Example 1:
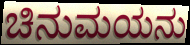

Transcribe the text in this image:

ಚಿನುಮಯನು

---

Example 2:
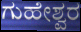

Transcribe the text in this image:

ಗುಹೇಶ್ವರ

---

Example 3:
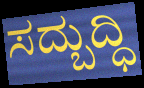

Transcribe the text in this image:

ಸದ್ಬುದ್ಧಿ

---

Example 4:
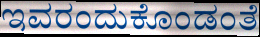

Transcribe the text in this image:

ಇವರಂದುಕೊಂಡಂತೆ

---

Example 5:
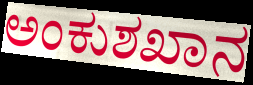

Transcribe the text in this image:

ಅಂಕುಶಖಾನ